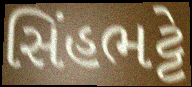
સિંહભટ્ટે